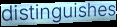
distinguishes